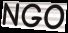
NGO